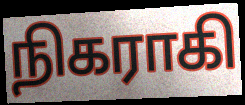
நிகராகி